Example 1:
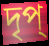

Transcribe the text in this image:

দৃপ্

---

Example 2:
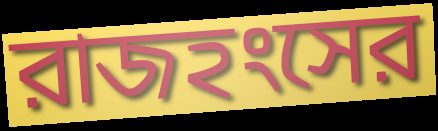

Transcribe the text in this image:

রাজহংসের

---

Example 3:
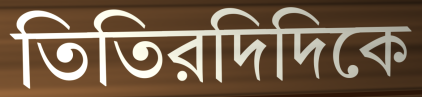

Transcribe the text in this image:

তিতিরদিদিকে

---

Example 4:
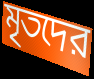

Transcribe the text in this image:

মৃতদের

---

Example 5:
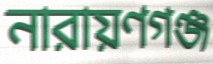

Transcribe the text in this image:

নারায়ণগঞ্জ